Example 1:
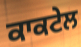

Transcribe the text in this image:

ਕਾਕਟੇਲ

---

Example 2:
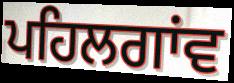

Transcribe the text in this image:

ਪਹਿਲਗਾਂਵ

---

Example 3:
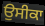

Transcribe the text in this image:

ਉਸੀਕਾ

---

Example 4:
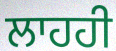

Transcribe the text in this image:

ਲਾਹਹੀ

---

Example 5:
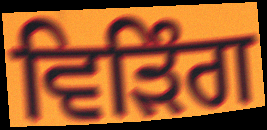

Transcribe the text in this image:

ਵਿੜਿੰਗ